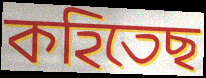
কহিতেছ